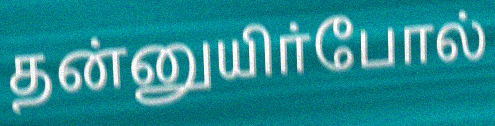
தன்னுயிர்போல்